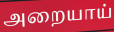
அறையாய்